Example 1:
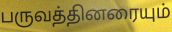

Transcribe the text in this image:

பருவத்தினரையும்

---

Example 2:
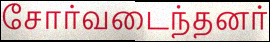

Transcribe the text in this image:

சோர்வடைந்தனர்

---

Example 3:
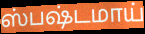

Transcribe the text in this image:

ஸ்பஷ்டமாய்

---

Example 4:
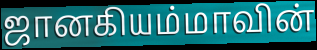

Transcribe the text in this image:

ஜானகியம்மாவின்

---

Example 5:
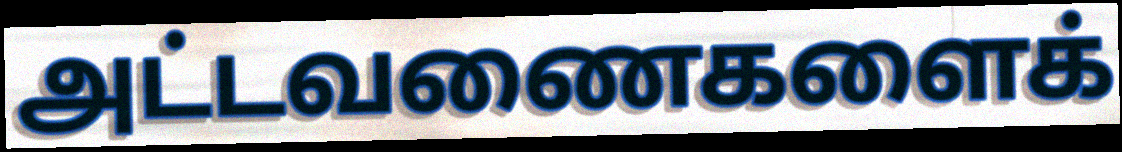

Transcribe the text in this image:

அட்டவணைகளைக்